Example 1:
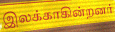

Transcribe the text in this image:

இலக்காகின்றனர்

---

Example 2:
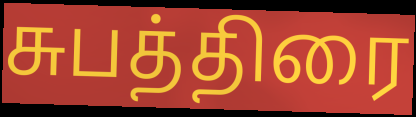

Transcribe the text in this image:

சுபத்திரை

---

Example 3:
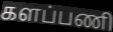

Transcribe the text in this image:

களப்பணி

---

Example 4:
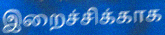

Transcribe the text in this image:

இறைச்சிக்காக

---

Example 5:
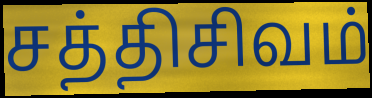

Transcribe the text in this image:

சத்திசிவம்